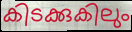
കിടക്കുകിലും